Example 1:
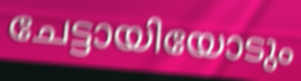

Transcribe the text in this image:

ചേട്ടായിയോടും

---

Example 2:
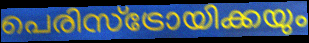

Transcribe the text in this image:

പെരിസ്ട്രോയിക്കയും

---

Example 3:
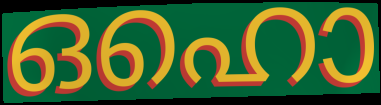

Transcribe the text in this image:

ഒഹൊ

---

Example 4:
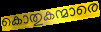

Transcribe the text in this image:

കൊതുകന്മാരെ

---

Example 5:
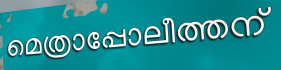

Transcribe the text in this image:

മെത്രാപ്പോലീത്തന്